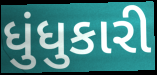
ધુંધુકારી